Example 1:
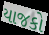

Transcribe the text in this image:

યાજકો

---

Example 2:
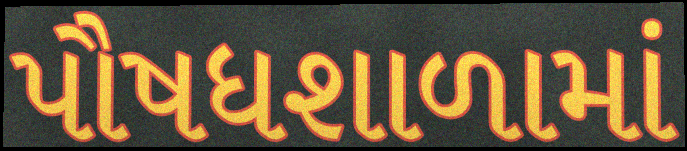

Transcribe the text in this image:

પૌષધશાળામાં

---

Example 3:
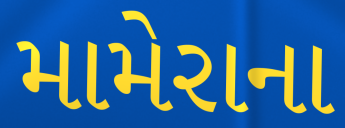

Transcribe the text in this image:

મામેરાના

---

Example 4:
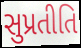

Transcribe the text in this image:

સુપ્રતીતિ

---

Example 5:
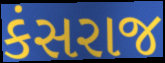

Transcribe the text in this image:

કંસરાજ